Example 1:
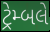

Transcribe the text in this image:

ટ્રેમ્બલે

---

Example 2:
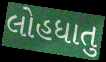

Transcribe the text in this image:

લોહધાતુ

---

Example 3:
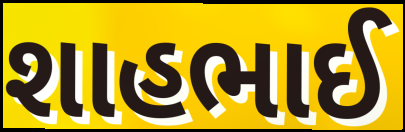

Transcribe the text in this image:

શાહભાઈ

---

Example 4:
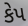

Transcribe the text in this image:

કેપ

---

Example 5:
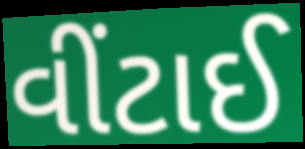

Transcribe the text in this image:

વીંટાઈ